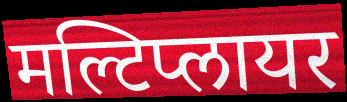
मल्टिप्लायर